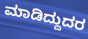
ಮಾಡಿದ್ದುದರ